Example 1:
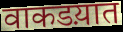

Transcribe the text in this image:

वाकडय़ात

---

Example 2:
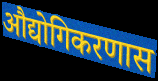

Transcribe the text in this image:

औद्योगिकरणास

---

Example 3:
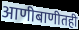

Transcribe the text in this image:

आणीबाणीतही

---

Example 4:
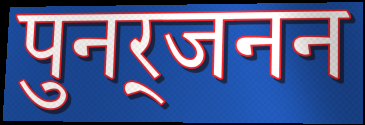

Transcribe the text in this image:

पुनर्जनन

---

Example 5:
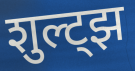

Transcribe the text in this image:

शुल्ट्झ